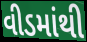
વીડમાંથી